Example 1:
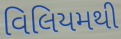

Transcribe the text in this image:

વિલિયમથી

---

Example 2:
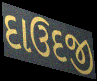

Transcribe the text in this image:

દાઉદજી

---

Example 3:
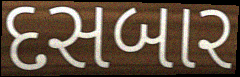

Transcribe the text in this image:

દસબાર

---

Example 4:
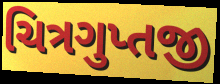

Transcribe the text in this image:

ચિત્રગુપ્તજી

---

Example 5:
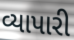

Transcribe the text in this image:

વ્યાપારી